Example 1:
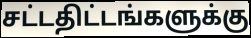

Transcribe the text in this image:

சட்டதிட்டங்களுக்கு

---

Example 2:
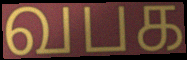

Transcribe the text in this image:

வபக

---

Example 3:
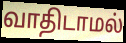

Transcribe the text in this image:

வாதிடாமல்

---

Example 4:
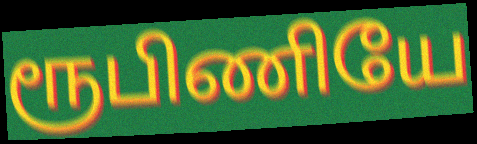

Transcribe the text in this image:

ரூபிணியே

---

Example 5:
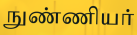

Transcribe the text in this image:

நுண்ணியர்